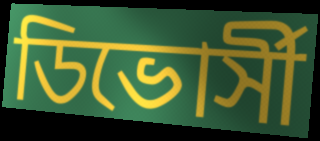
ডিভোর্সী